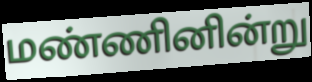
மண்ணினின்று